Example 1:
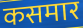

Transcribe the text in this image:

कसमार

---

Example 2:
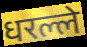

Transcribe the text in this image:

धरल्ले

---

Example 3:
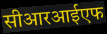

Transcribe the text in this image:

सीआरआईएफ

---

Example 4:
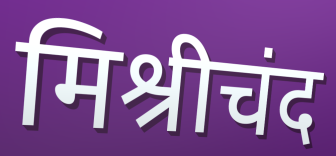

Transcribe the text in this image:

मिश्रीचंद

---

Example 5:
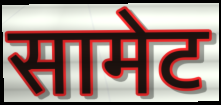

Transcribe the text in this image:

सामेट